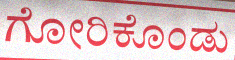
ಗೋರಿಕೊಂಡು